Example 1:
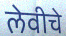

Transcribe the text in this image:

लेवीचे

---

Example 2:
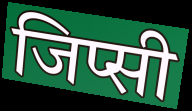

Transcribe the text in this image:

जिप्सी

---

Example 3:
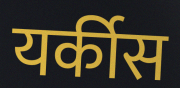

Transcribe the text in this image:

यर्कीस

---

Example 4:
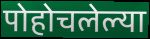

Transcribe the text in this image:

पोहोचलेल्या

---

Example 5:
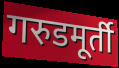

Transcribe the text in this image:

गरुडमूर्ती